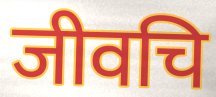
जीवचि